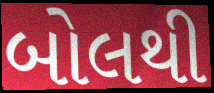
બોલથી